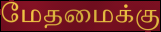
மேதமைக்கு